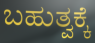
ಬಹುತ್ವಕ್ಕೆ